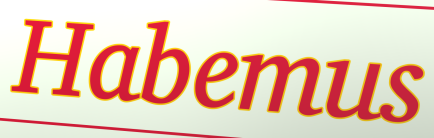
Habemus